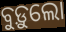
ବୁଡ଼ୁଲୋ